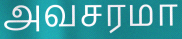
அவசரமா